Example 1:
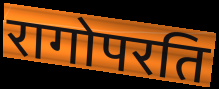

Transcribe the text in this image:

रागोपरति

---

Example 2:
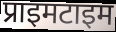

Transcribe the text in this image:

प्राइमटाइम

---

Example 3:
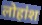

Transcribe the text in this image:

लोहांश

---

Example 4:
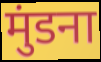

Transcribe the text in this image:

मुंडना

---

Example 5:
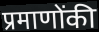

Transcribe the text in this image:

प्रमाणोंकी